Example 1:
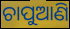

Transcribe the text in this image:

ଚାପୁଆଣି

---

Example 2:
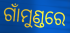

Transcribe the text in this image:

ଗାଁମୁଣ୍ଡରେ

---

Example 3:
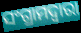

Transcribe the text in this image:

ସଂଗ୍ରାମଦ୍ଵାରା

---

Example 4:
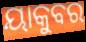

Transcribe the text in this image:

ୟାକୁବର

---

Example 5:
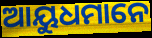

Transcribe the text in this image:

ଆୟୁଧମାନେ